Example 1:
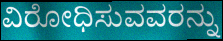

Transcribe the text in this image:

ವಿರೋಧಿಸುವವರನ್ನು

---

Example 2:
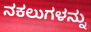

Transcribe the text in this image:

ನಕಲುಗಳನ್ನು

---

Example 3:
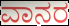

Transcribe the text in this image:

ವಾನರ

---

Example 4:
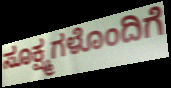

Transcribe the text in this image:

ಸೂಕ್ಷ್ಮಗಳೊಂದಿಗೆ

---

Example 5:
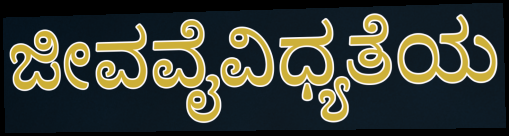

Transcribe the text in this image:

ಜೀವವೈವಿಧ್ಯತೆಯ